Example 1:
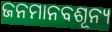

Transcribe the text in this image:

ଜନମାନବଶୂନ୍ୟ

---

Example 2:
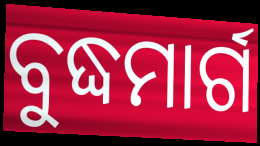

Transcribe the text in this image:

ବୁଦ୍ଧମାର୍ଗ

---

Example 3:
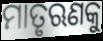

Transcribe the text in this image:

ମାତୃଋଣକୁ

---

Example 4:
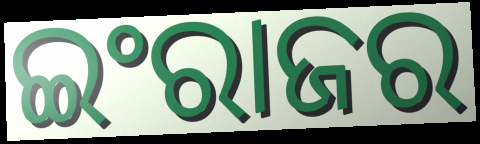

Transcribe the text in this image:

ଇଂରାଜର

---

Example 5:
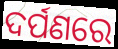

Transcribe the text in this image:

ଦର୍ପଣରେ